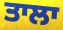
ਤਾਲਾ